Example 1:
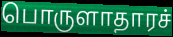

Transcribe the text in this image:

பொருளாதாரச்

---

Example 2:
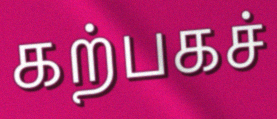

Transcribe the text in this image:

கற்பகச்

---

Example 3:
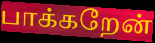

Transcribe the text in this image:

பாக்கறேன்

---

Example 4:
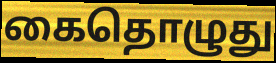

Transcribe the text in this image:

கைதொழுது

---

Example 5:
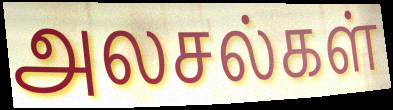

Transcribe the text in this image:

அலசல்கள்